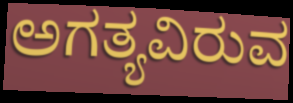
ಅಗತ್ಯವಿರುವ